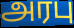
அரபு